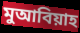
মুআবিয়াহ